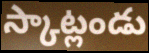
స్కాట్లండు